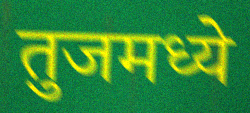
तुजमध्ये